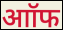
आॉफ